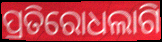
ପ୍ରତିରୋଧଲାଗି